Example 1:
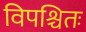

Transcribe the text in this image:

विपश्चितः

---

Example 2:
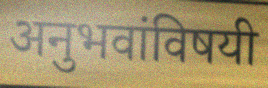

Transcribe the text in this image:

अनुभवांविषयी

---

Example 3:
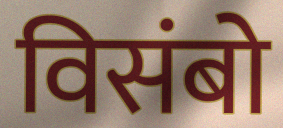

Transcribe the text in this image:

विसंबो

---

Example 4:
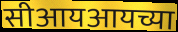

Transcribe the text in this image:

सीआयआयच्या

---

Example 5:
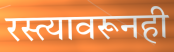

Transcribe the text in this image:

रस्त्यावरूनही